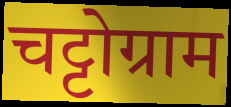
चट्टोग्राम